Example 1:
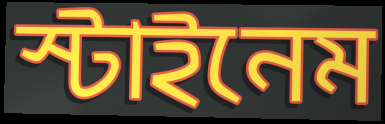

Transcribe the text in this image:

স্টাইনেম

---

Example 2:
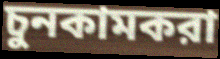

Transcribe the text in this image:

চুনকামকরা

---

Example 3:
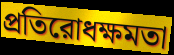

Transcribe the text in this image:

প্রতিরোধক্ষমতা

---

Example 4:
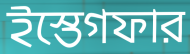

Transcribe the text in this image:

ইস্তেগফার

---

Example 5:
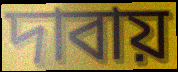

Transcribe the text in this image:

দাবায়